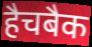
हैचबैक